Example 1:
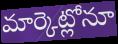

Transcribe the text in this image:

మార్కెట్లోనూ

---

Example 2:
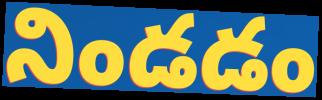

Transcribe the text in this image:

నిండడం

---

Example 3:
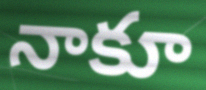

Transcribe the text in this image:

నాకూ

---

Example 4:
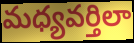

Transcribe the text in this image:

మధ్యవర్తిలా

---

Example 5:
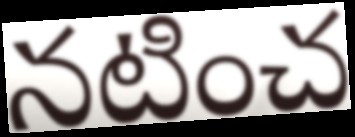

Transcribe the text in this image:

నటించ